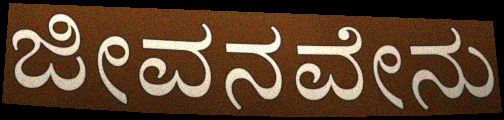
ಜೀವನವೇನು